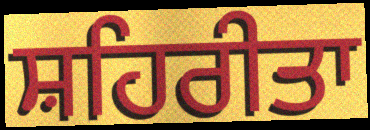
ਸ਼ਹਿਰੀਤਾ